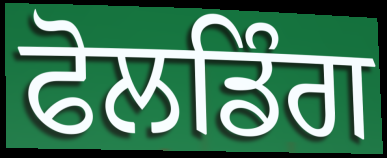
ਫੋਲਡਿੰਗ